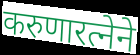
करुणारत्नेने